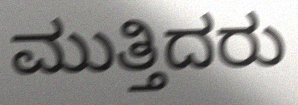
ಮುತ್ತಿದರು